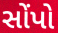
સોંપો